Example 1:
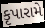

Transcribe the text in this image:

કૃપારામે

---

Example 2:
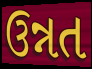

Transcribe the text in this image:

ઉન્નત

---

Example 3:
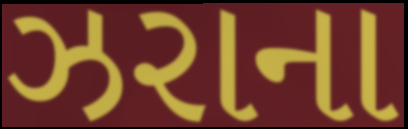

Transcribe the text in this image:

ઝરાના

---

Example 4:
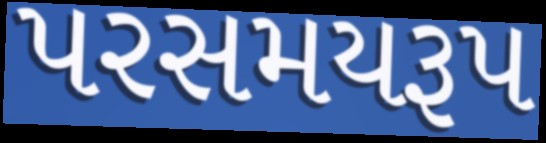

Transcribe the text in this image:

પરસમયરૂપ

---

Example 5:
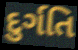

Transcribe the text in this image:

દુર્ગતિ